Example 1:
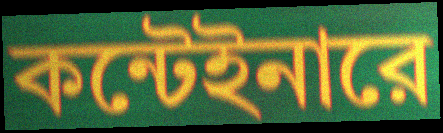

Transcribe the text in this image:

কন্টেইনারে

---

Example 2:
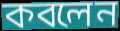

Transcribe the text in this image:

কবলেন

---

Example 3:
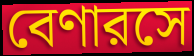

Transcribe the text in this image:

বেণারসে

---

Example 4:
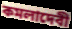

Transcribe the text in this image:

কমলাদেবী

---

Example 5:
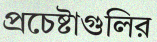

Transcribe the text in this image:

প্রচেষ্টাগুলির